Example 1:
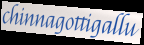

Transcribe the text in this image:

chinnagottigallu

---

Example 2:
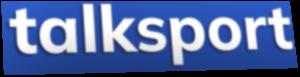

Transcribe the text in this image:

talksport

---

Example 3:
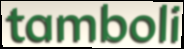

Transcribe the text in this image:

tamboli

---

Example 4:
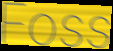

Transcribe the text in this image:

Foss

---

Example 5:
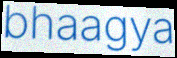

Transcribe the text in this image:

bhaagya